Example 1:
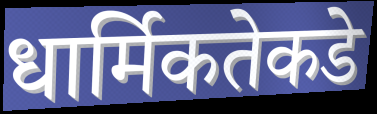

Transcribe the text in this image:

धार्मिकतेकडे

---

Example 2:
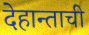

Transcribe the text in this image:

देहान्ताची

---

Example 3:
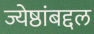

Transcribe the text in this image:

ज्येष्ठांबद्दल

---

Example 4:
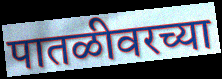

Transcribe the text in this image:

पातळीवरच्या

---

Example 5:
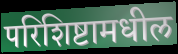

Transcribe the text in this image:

परिशिष्टामधील